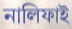
নালিফাই